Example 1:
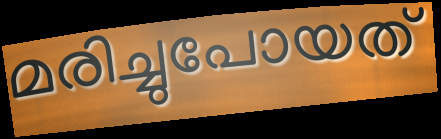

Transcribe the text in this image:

മരിച്ചുപോയത്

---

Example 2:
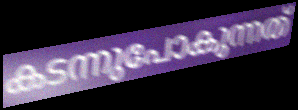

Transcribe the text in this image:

കടന്നുപോകുന്നത്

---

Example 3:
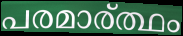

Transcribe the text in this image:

പരമാര്ത്ഥം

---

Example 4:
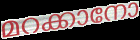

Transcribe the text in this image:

മറക്കാനോ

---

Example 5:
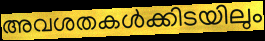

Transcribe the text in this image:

അവശതകൾക്കിടയിലും